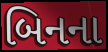
બિનના